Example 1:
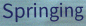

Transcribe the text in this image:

Springing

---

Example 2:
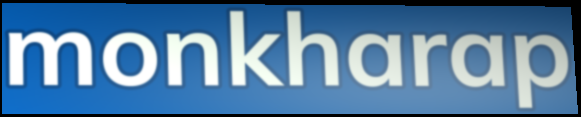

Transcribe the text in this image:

monkharap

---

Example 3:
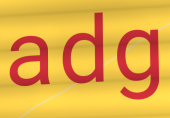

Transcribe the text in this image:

adg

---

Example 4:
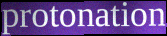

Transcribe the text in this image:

protonation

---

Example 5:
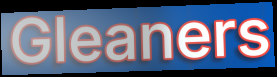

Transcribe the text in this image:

Gleaners